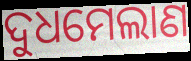
ଦୁଧମେଲାଣ